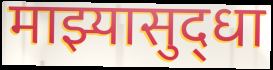
माझ्यासुद्धा